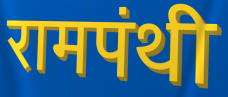
रामपंथी